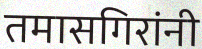
तमासगिरांनी